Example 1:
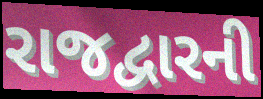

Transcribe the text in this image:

રાજદ્વારની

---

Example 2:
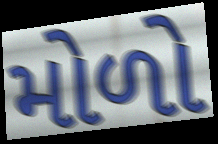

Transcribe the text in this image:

મોળો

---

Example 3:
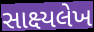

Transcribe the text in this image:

સાક્ષ્યલેખ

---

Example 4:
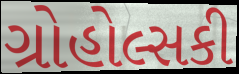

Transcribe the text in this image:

ગ્રોહોલ્સકી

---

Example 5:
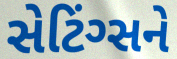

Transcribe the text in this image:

સેટિંગ્સને